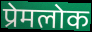
प्रेमलोक